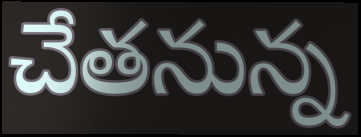
చేతనున్న